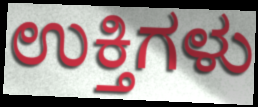
ಉಕ್ತಿಗಳು